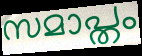
സമാപ്തം